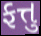
ફત્તુ